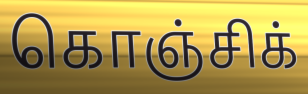
கொஞ்சிக்